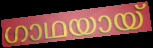
ഗാഥയായ്